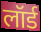
लॉर्ड